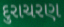
દુરાચરણ